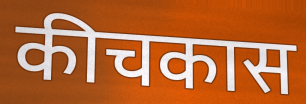
कीचकास